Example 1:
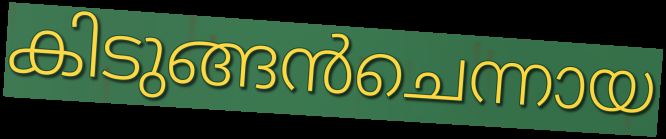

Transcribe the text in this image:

കിടുങ്ങൻചെന്നായ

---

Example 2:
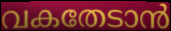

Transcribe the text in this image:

വകതേടാൻ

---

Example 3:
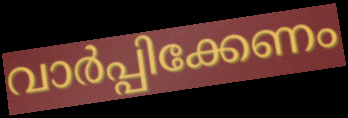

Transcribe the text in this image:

വാർപ്പിക്കേണം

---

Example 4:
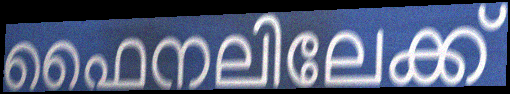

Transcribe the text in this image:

ഫൈനലിലേക്ക്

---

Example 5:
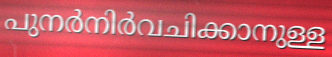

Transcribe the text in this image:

പുനർനിർവചിക്കാനുള്ള